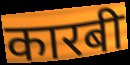
कारबी